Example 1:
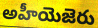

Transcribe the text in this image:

అహీయెజెరు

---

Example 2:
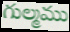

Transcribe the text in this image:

గుల్మము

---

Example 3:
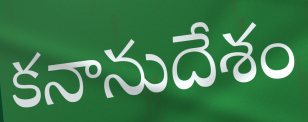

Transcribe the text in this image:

కనానుదేశం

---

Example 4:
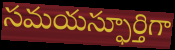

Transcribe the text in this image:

సమయస్ఫూర్తిగా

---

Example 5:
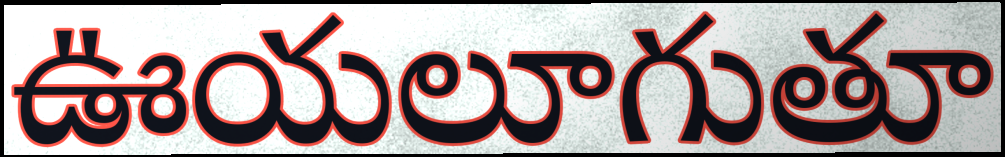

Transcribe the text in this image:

ఊయలూగుతూ